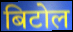
बिटोल